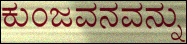
ಕುಂಜವನವನ್ನು